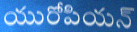
యురోపియన్